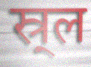
स्र्ल